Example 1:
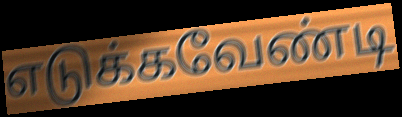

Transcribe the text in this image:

எடுக்கவேண்டி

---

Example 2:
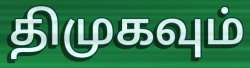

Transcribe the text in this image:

திமுகவும்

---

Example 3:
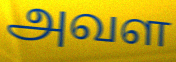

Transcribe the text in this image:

அவள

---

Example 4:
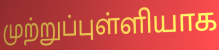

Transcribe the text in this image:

முற்றுப்புள்ளியாக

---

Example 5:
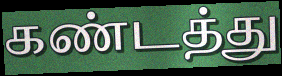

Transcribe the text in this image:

கண்டத்து